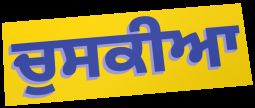
ਚੁਸਕੀਆ